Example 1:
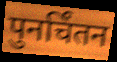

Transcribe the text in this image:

पुनर्चिंतन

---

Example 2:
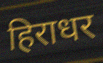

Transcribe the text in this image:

हिराधर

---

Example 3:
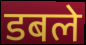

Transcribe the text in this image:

डबले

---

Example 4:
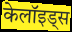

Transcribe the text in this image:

केलॉइड्स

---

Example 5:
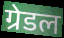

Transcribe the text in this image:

ग्रेडल